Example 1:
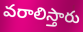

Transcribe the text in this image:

వరాలిస్తారు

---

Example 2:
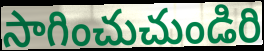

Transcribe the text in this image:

సాగించుచుండిరి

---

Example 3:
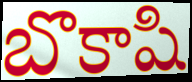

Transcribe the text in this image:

బొకాషి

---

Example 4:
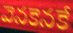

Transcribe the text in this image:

వెనకెనకే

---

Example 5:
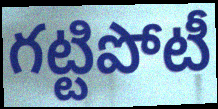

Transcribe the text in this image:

గట్టిపోటీ